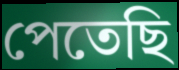
পেতেছি